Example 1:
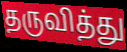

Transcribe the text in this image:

தருவித்து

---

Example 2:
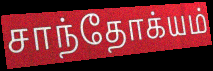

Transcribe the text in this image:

சாந்தோக்யம்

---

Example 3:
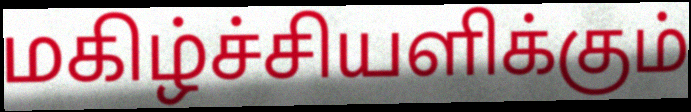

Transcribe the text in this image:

மகிழ்ச்சியளிக்கும்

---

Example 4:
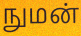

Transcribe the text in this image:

நுமன்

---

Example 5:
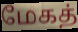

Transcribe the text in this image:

மேகத்